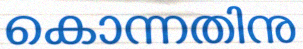
കൊന്നതിനു